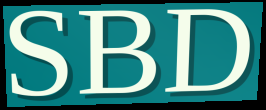
SBD